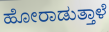
ಹೋರಾಡುತ್ತಾಳೆ